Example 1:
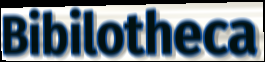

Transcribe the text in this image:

Bibilotheca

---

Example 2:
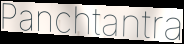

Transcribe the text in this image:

Panchtantra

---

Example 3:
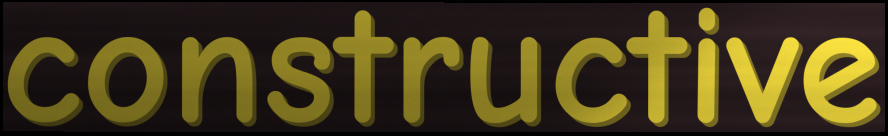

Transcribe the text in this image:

constructive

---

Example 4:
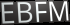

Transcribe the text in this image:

EBFM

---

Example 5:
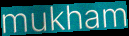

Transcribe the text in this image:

mukham